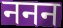
ननन